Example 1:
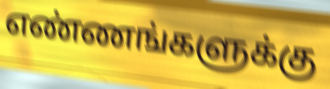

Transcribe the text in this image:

எண்ணங்களுக்கு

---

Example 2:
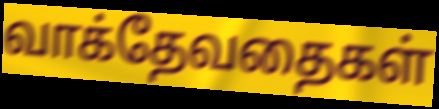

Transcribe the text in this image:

வாக்தேவதைகள்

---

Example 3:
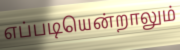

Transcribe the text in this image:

எப்படியென்றாலும்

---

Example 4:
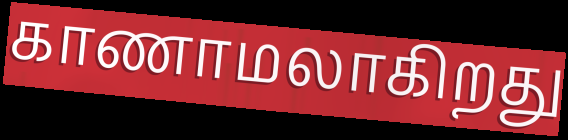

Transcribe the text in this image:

காணாமலாகிறது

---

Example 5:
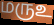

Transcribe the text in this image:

மருஉ